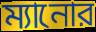
ম্যানোর